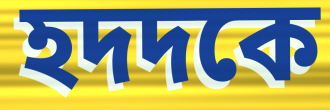
হদদকে